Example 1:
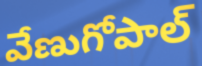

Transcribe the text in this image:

వేణుగోపాల్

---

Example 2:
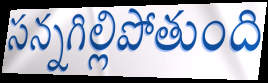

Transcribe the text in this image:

సన్నగిల్లిపోతుంది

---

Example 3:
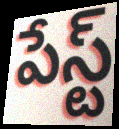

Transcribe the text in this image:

పేస్ట్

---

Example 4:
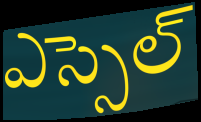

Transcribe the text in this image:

ఎస్సెల్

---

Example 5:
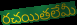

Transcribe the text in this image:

రచయితలేమీ